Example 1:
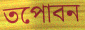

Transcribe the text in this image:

তপোবন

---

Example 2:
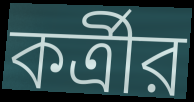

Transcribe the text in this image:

কর্ত্রীর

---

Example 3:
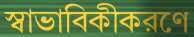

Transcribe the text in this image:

স্বাভাবিকীকরণে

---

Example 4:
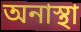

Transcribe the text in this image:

অনাস্থা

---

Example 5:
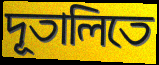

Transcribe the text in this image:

দূতালিতে